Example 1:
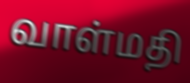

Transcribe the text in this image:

வாள்மதி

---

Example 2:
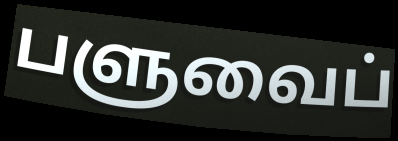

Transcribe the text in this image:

பளுவைப்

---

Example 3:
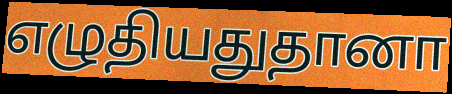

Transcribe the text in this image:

எழுதியதுதானா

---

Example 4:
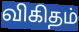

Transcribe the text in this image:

விகிதம்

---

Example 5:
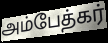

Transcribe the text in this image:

அம்பேத்கர்